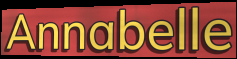
Annabelle